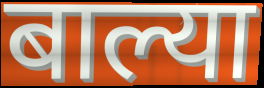
बाल्या